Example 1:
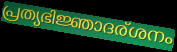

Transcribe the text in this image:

പ്രത്യഭിജ്ഞാദര്ശനം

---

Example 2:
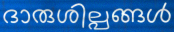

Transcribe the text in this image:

ദാരുശില്പങ്ങൾ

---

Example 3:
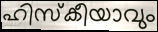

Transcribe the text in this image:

ഹിസ്കീയാവും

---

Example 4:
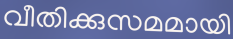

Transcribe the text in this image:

വീതിക്കുസമമായി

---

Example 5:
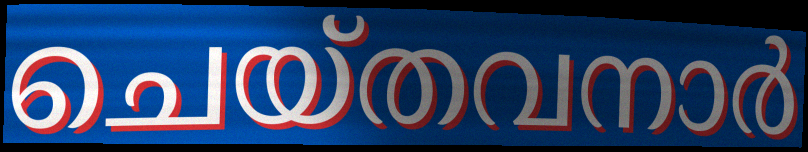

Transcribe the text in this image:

ചെയ്തവനാർ